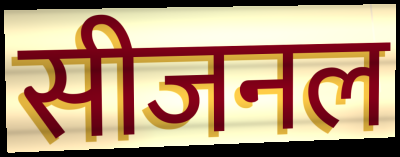
सीजनल